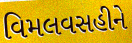
વિમલવસહીને